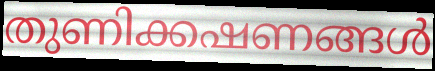
തുണിക്കഷണങ്ങൾ